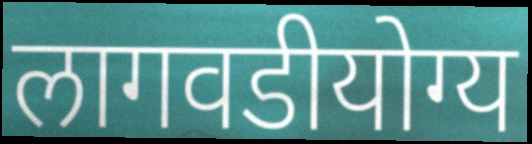
लागवडीयोग्य